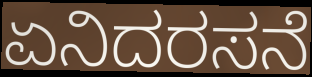
ಏನಿದರಸನೆ